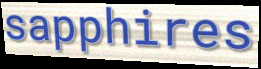
sapphires